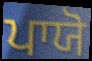
ਪਾਯੋ